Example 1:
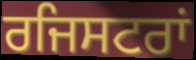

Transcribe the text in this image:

ਰਜਿਸਟਰਾਂ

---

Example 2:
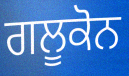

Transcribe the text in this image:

ਗਲੂਕੋਨ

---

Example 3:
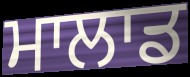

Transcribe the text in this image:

ਮਾਲਾਡ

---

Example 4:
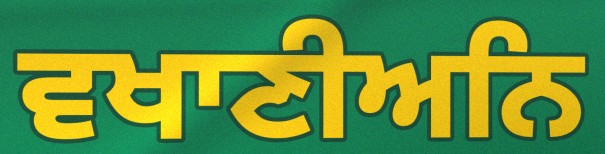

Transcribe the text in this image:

ਵਖਾਣੀਅਨਿ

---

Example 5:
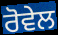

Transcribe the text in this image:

ਰੋਵੇਲ